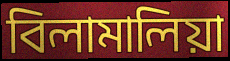
বিলামালিয়া